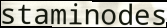
staminodes